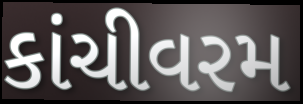
કાંચીવરમ